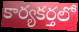
కార్యకర్తలో